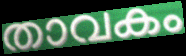
താവകം